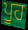
ਪੂਹ